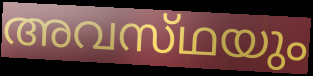
അവസ്‌ഥയും